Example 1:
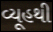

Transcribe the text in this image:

વ્યૂહથી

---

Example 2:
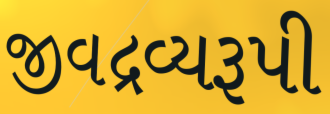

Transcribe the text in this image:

જીવદ્રવ્યરૂપી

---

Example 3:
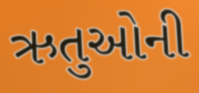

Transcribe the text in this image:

ઋતુઓની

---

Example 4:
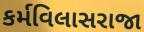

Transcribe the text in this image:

કર્મવિલાસરાજા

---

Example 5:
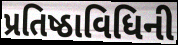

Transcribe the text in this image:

પ્રતિષ્ઠાવિધિની